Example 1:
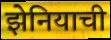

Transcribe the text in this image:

झेनियाची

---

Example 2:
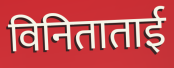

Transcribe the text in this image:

विनिताताई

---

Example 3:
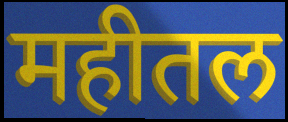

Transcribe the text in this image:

महीतल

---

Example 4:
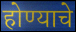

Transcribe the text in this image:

होण्याचे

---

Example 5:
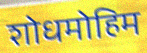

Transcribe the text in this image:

शोधमोहिम